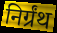
निर्ग्रंथ